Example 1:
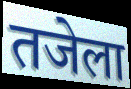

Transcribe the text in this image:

तजेला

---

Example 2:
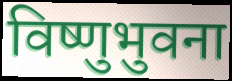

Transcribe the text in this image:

विष्णुभुवना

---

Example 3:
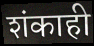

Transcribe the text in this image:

शंकाही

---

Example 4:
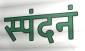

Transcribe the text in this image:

स्पंदनं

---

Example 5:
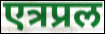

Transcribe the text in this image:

एत्रप्रल